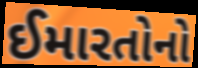
ઈમારતોનો